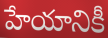
హేయానికీ